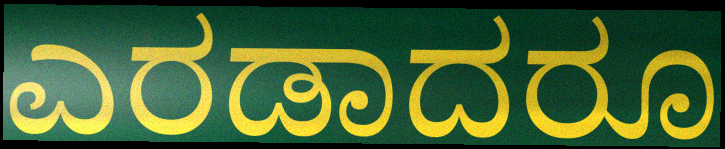
ಎರಡಾದರೂ